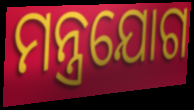
ମନ୍ତ୍ରଯୋଗ